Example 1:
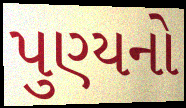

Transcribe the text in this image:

પુણ્યનો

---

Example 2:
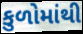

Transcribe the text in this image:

કુળોમાંથી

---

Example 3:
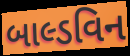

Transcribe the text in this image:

બાલ્ડવિન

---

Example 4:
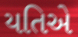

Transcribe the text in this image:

યતિએ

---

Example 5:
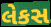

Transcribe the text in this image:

લેકસ